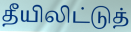
தீயிலிட்டுத்